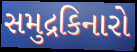
સમુદ્રકિનારો